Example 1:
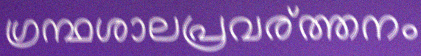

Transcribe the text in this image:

ഗ്രന്ഥശാലപ്രവര്ത്തനം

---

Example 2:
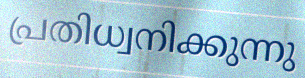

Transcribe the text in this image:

പ്രതിധ്വനിക്കുന്നു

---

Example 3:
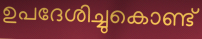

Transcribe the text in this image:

ഉപദേശിച്ചുകൊണ്ട്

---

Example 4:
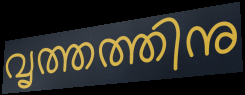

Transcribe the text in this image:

വൃത്തത്തിനു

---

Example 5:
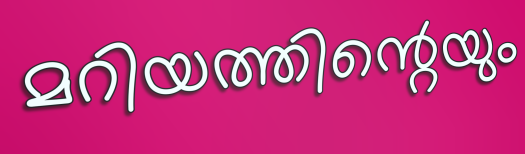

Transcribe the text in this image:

മറിയത്തിന്റെയും